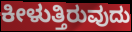
ಕೀಳುತ್ತಿರುವುದು